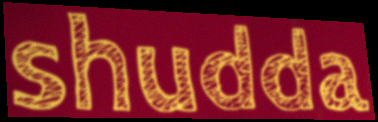
shudda